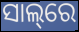
ସାଲ୍‌ରେ